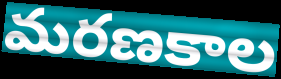
మరణకాల